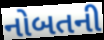
નોબતની